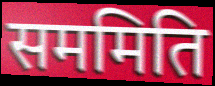
सममिति